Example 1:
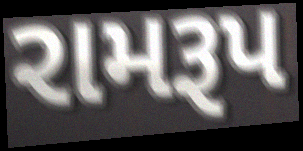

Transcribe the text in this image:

રામરૂપ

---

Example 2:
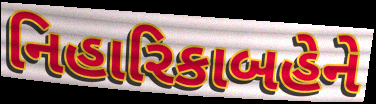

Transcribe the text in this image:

નિહારિકાબહેને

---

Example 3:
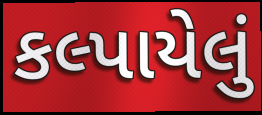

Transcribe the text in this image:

કલ્પાયેલું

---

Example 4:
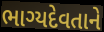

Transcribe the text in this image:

ભાગ્યદેવતાને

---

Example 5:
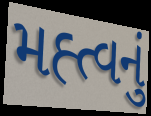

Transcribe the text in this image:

મહ્ત્વનું